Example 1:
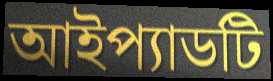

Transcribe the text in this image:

আইপ্যাডটি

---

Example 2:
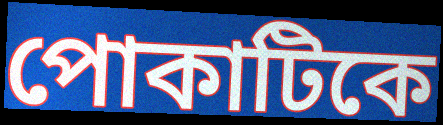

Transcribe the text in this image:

পোকাটিকে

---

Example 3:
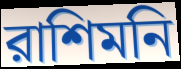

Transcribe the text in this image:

রাশিমনি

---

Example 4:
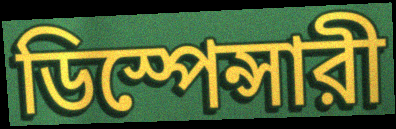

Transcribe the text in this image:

ডিস্পেন্সারী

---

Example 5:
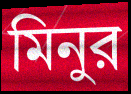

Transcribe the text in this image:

মিনুর